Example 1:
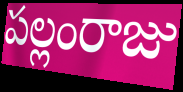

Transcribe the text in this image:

పల్లంరాజు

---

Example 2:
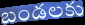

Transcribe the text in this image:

బండలకు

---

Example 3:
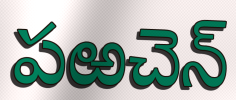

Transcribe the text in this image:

పఱచెన్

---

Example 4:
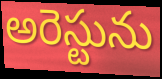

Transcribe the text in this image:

అరెస్టును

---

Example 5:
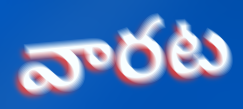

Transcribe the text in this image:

వారట